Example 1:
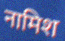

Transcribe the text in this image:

नामिश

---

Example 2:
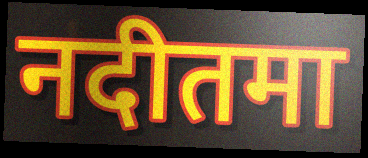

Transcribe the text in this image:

नदीतमा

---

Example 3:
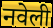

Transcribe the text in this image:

नवेली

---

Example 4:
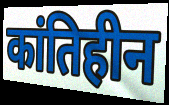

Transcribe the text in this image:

कांतिहीन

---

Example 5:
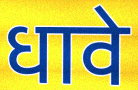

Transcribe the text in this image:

धावे